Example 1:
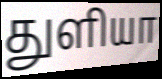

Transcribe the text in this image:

துளியா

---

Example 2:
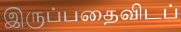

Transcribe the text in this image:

இருப்பதைவிடப்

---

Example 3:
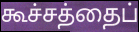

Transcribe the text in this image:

கூச்சத்தைப்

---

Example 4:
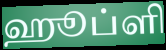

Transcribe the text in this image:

ஹூப்ளி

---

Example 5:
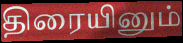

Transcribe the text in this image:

திரையினும்